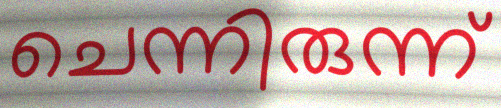
ചെന്നിരുന്ന്